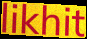
likhit